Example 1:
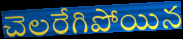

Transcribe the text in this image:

చెలరేగిపోయిన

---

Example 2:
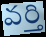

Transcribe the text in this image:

వర్తి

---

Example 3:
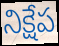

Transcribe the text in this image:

నిక్షేప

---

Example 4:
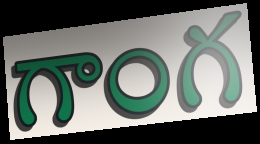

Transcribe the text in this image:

గాంగ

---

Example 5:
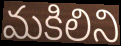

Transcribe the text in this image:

మకిలిని